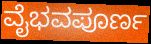
ವೈಭವಪೂರ್ಣ